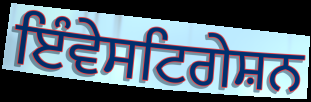
ਇੰਵੇਸਟਿਗੇਸ਼ਨ